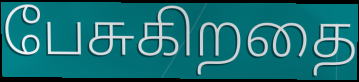
பேசுகிறதை